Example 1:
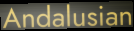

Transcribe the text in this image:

Andalusian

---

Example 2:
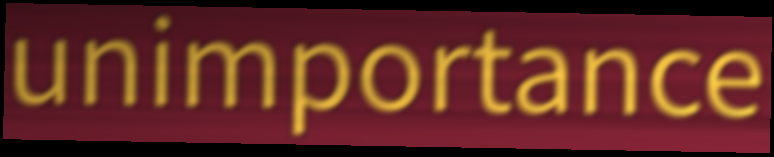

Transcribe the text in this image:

unimportance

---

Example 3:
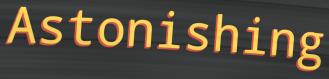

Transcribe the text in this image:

Astonishing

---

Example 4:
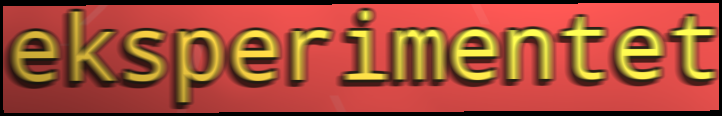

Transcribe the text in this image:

eksperimentet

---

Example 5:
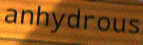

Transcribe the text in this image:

anhydrous